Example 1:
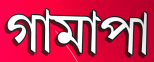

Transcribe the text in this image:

গামাপা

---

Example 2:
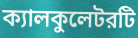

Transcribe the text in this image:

ক্যালকুলেটরটি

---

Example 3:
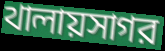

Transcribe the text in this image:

থালায়সাগর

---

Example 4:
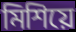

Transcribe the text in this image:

মিশিয়ে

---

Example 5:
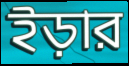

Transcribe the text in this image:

ইড়ার